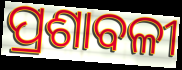
ପ୍ରଶାବଳୀ